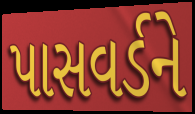
પાસવર્ડને